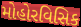
મોહોરવિસિક